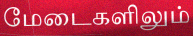
மேடைகளிலும்